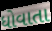
ધોવાતા